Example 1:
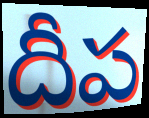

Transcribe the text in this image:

దీప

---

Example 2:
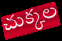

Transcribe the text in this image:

చుక్కల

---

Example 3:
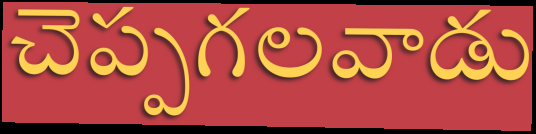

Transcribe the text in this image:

చెప్పగలవాడు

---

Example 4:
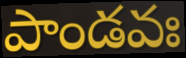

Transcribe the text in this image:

పాండవః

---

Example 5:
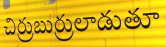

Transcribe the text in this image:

చిర్రుబుర్రులాడుతూ